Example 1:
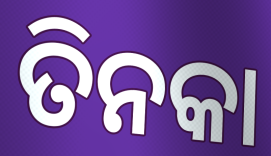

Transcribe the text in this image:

ତିନକା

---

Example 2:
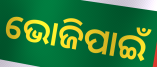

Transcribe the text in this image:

ଭୋଜିପାଇଁ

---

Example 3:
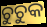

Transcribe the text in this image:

ଚୁଚୁକ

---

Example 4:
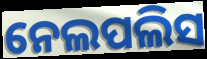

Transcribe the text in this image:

ନେଲପଲିସ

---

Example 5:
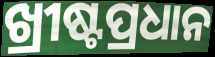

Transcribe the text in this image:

ଖ୍ରୀଷ୍ଟପ୍ରଧାନ